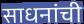
साधनांची